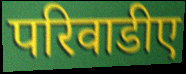
परिवाडीए